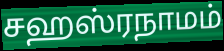
சஹஸ்ரநாமம்